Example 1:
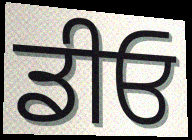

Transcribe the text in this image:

ਡੀਓ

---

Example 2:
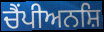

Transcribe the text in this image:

ਚੈਂਪੀਅਨਸ਼ਿ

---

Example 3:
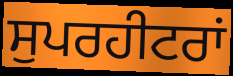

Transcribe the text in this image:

ਸੁਪਰਹੀਟਰਾਂ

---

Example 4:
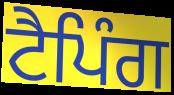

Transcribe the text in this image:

ਟੈਪਿੰਗ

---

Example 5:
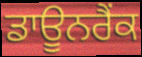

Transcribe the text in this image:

ਡਾਊਨਰੈਂਕ